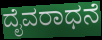
ದೈವರಾಧನೆ